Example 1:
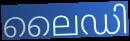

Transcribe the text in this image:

ലൈഡി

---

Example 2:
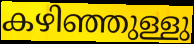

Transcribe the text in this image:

കഴിഞ്ഞുള്ളു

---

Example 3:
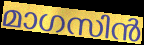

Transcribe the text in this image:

മാഗസിൻ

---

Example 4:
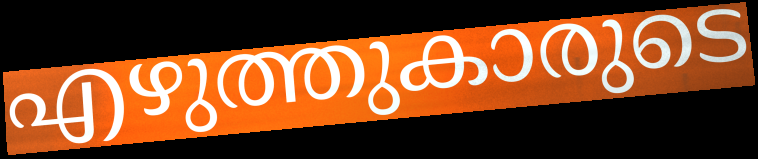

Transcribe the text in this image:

എഴുത്തുകാരുടെ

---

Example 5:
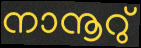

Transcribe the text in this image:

നാനൂറു്